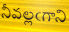
నీవల్లఁగాని